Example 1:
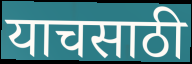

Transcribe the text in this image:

याचसाठी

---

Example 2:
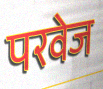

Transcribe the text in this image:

परवेज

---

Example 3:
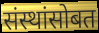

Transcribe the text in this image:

संस्थांसोबत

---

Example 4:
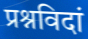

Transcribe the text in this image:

प्रश्नविदां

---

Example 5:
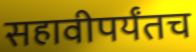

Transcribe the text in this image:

सहावीपर्यंतच